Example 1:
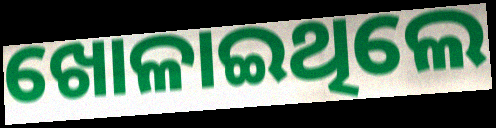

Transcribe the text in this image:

ଖୋଳାଇଥିଲେ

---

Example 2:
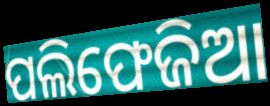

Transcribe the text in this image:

ପଲିଫେଜିଆ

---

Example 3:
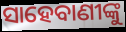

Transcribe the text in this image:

ସାହେବାଣୀଙ୍କୁ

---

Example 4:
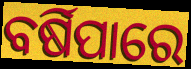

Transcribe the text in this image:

ବର୍ଷିପାରେ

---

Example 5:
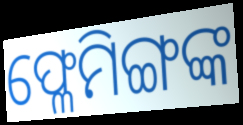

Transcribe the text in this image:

ଫ୍ଳେମିଙ୍ଗଙ୍କ